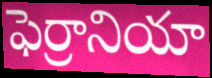
ఫెర్రానియా